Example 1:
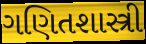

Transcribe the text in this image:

ગણિતશાસ્ત્રી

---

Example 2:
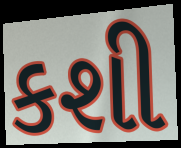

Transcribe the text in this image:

કશી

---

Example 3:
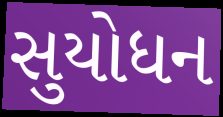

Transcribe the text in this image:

સુયોધન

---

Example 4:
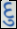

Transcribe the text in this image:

દુ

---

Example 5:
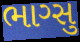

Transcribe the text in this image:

ભાગ્સુ